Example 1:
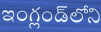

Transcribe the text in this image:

ఇంగ్లండ్‌లోని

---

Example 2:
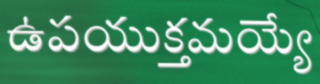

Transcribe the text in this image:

ఉపయుక్తమయ్యే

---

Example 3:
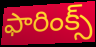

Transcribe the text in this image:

ఫారింక్స్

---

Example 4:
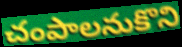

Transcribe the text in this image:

చంపాలనుకొని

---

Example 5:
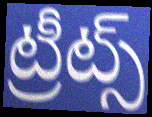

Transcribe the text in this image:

ట్రీట్స్